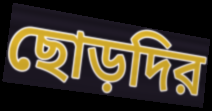
ছোড়দির